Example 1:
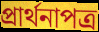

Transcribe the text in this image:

প্রার্থনাপত্র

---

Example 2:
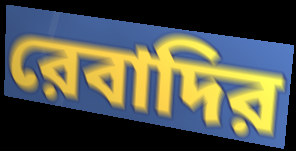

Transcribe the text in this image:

রেবাদির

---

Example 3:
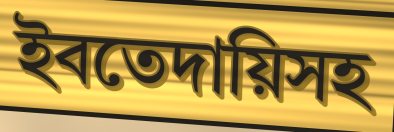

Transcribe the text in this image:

ইবতেদায়িসহ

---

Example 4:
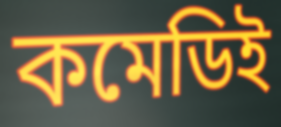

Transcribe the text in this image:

কমেডিই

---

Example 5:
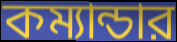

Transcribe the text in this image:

কম্যান্ডার